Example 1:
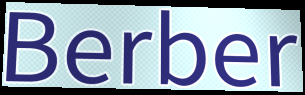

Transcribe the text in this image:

Berber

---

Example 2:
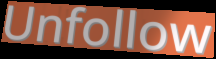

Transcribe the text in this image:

Unfollow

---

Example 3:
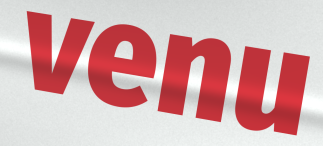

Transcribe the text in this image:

venu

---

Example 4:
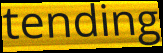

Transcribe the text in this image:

tending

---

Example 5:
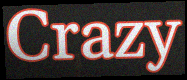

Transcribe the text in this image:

Crazy